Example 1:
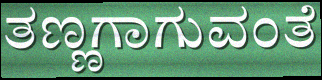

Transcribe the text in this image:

ತಣ್ಣಗಾಗುವಂತೆ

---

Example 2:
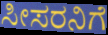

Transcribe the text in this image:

ಸೀಸರನಿಗೆ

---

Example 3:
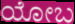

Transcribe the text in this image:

ಯೋಬ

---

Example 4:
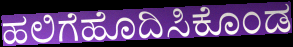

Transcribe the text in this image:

ಹಲಿಗೆಹೊದಿಸಿಕೊಂಡ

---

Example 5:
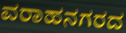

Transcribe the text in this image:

ವರಾಹನಗರದ